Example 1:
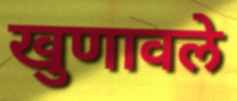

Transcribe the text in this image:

खुणावले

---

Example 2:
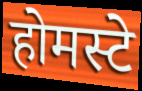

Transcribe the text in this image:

होमस्टे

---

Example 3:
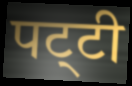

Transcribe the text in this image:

पट्‌टी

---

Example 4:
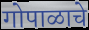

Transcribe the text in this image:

गोपाळाचे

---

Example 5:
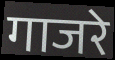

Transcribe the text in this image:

गाजरे